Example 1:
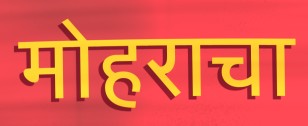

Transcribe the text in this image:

मोहराचा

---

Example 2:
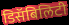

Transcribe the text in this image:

डिसॅबिलिटी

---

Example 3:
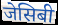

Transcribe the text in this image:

जेसिबी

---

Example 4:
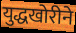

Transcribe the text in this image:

युद्धखोरीने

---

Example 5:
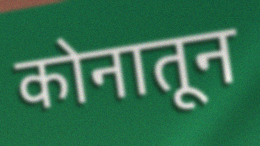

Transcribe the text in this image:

कोनातून